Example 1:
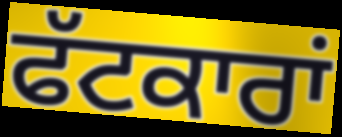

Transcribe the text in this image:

ਫੱਟਕਾਰਾਂ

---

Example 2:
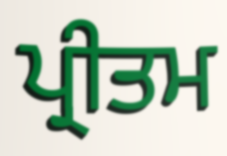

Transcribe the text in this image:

ਪ੍ਰੀਤਮ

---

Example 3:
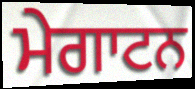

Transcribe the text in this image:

ਮੇਗਾਟਨ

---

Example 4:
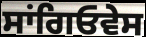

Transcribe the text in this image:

ਸਾਂਗਿਓਵੇਸ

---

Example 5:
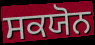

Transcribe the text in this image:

ਸਕਯੋਨ